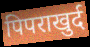
पिपराखुर्द